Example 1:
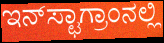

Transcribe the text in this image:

ಇನ್‌ಸ್ಟಾಗ್ರಾಂನಲ್ಲಿ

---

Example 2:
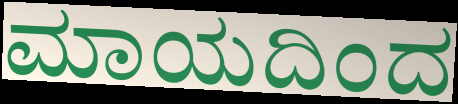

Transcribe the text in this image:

ಮಾಯದಿಂದ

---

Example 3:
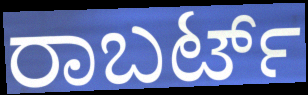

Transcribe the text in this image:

ರಾಬರ್ಟ್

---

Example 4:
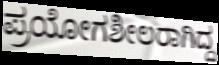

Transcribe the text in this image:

ಪ್ರಯೋಗಶೀಲರಾಗಿದ್ದ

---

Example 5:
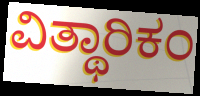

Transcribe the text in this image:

ವಿತ್ಥಾರಿಕಂ